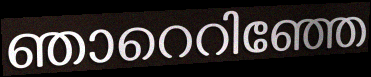
ഞാറെറിഞ്ഞേ